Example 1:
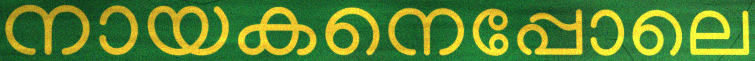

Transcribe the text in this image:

നായകനെപ്പോലെ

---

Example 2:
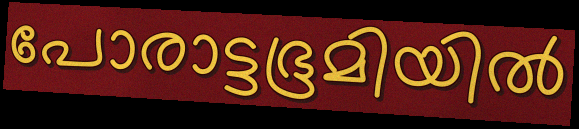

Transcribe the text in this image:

പോരാട്ടഭൂമിയിൽ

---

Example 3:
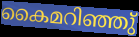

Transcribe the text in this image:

കൈമറിഞ്ഞു്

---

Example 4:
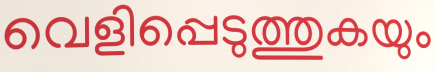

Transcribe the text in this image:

വെളിപ്പെടുത്തുകയും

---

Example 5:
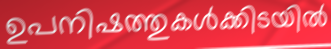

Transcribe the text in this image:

ഉപനിഷത്തുകൾക്കിടയിൽ